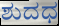
ಶುದಧ